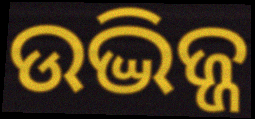
ଉଦ୍ଭିଜ୍ଜ